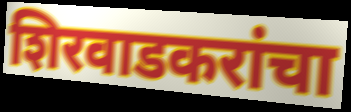
शिरवाडकरांचा